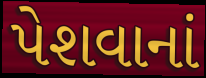
પેશવાનાં